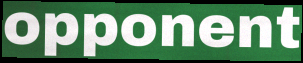
opponent